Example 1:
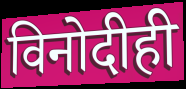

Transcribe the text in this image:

विनोदीही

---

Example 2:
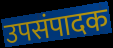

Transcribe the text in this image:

उपसंपादक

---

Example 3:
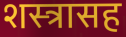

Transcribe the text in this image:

शस्त्रासह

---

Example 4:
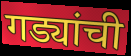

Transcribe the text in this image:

गड्यांची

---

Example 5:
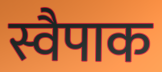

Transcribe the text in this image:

स्वैपाक